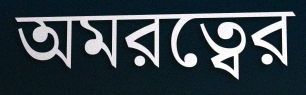
অমরত্বের